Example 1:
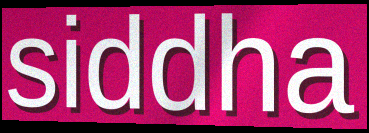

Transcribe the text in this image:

siddha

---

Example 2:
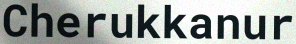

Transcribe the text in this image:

Cherukkanur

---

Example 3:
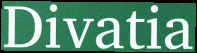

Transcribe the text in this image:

Divatia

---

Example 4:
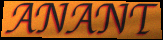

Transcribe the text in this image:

ANANT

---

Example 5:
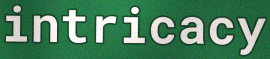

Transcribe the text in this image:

intricacy